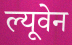
ल्यूवेन